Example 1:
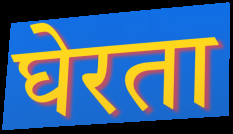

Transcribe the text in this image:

घेरता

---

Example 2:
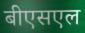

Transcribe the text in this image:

बीएसएल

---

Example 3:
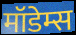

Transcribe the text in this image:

मॉडेम्स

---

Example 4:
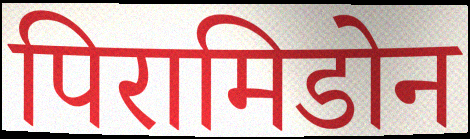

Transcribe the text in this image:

पिरामिडोन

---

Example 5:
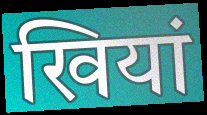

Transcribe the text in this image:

खियां